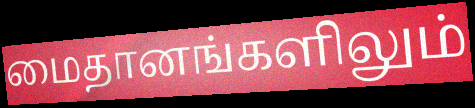
மைதானங்களிலும்